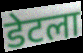
डेटला